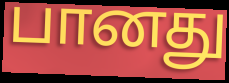
பானது